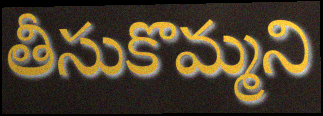
తీసుకొమ్మని